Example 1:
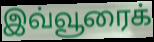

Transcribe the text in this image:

இவ்வூரைக்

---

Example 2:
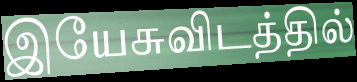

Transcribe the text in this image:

இயேசுவிடத்தில்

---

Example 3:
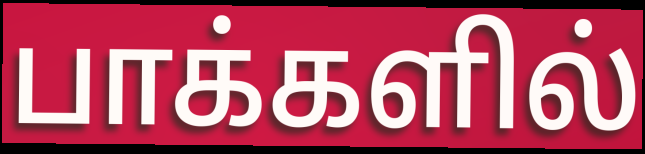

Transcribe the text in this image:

பாக்களில்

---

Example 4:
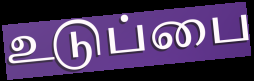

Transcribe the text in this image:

உடுப்பை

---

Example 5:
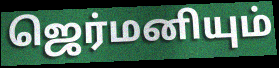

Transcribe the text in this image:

ஜெர்மனியும்